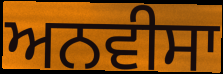
ਅਨਵੀਸਾ